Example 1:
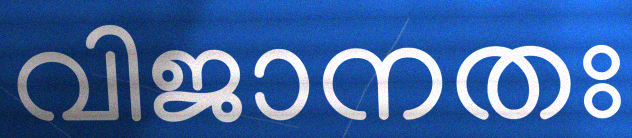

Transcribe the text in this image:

വിജാനതഃ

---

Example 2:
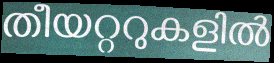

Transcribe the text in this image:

തീയറ്ററുകളിൽ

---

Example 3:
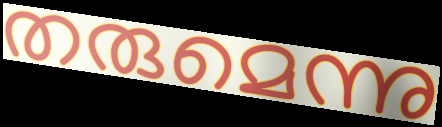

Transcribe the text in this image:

തരുമെന്നു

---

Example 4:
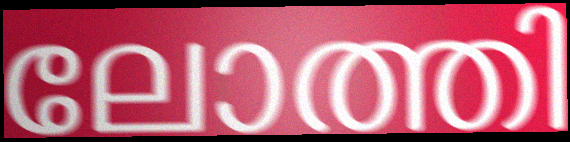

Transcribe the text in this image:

ലോത്തി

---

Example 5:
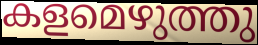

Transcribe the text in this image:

കളമെഴുത്തു